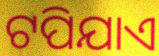
ଟପିଯାଏ